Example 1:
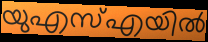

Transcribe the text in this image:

യുഎസ്എയിൽ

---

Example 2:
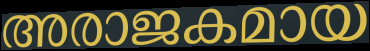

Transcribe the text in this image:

അരാജകമായ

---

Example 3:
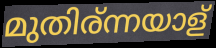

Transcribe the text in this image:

മുതിര്ന്നയാള്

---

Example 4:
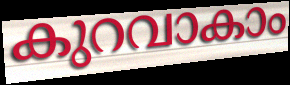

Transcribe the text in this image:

കുറവാകാം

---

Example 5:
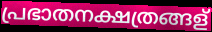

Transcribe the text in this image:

പ്രഭാതനക്ഷത്രങ്ങള്